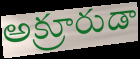
అక్రూరుడా